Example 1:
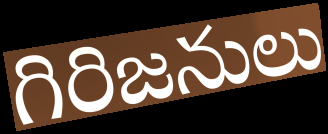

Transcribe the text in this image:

గిరిజనులు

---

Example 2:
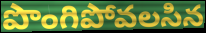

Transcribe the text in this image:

పొంగిపోవలసిన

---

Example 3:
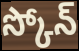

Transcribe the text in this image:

స్కోన్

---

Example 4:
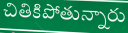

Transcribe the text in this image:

చితికిపోతున్నారు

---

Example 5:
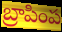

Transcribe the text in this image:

బ్రాపింప